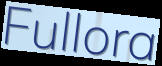
Fullora